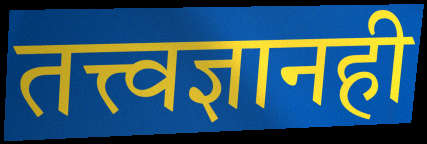
तत्त्वज्ञानही